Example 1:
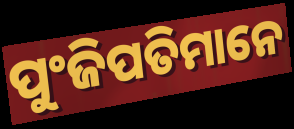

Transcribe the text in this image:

ପୁଂଜିପତିମାନେ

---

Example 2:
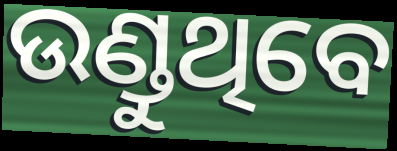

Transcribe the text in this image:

ଉଣ୍ଡୁଥିବେ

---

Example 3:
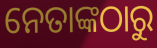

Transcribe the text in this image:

ନେତାଙ୍କଠାରୁ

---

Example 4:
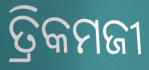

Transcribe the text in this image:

ତ୍ରିକମଜୀ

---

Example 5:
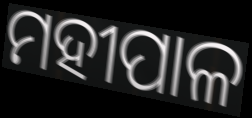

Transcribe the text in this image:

ମହୀପାଳ